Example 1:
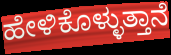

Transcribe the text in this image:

ಹೇಳಿಕೊಳ್ಳುತ್ತಾನೆ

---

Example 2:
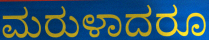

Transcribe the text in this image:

ಮರುಳಾದರೂ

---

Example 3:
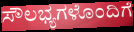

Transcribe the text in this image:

ಸೌಲಭ್ಯಗಳೊಂದಿಗೆ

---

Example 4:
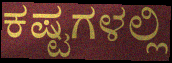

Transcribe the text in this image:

ಕಷ್ಟಗಳಲ್ಲಿ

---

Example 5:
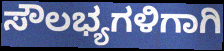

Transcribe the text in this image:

ಸೌಲಭ್ಯಗಳಿಗಾಗಿ